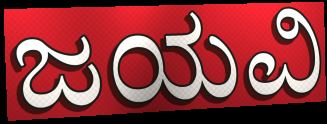
ಜಯವಿ